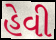
હેવી